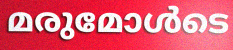
മരുമോൾടെ